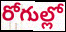
రోగుల్లో